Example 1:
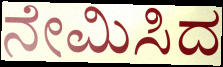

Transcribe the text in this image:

ನೇಮಿಸಿದ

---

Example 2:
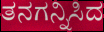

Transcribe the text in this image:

ತನಗನ್ನಿಸಿದ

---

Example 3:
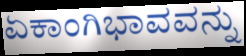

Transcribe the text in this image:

ಏಕಾಂಗಿಭಾವವನ್ನು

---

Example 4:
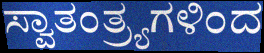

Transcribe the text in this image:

ಸ್ವಾತಂತ್ರ್ಯಗಳಿಂದ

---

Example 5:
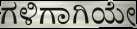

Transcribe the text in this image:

ಗಳಿಗಾಗಿಯೇ